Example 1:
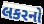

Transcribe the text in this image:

લકરનો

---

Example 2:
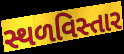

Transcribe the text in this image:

સ્થળવિસ્તાર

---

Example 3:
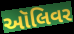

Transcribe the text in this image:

ઑલિવર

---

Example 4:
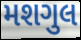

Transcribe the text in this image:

મશગુલ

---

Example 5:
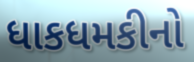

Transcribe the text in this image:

ધાકધમકીનો